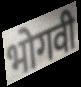
भोगवी